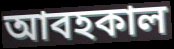
আবহকাল